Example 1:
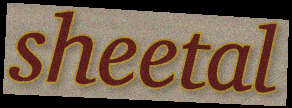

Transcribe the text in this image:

sheetal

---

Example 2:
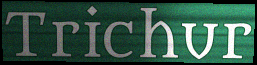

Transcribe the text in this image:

Trichur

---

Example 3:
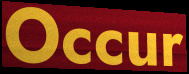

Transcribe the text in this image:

Occur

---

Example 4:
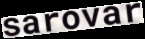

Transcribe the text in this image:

sarovar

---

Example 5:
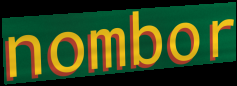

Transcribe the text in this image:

nombor